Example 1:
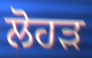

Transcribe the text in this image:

ਲੋਹੜ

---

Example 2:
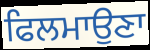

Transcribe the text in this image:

ਫਿਲਮਾਉਣਾ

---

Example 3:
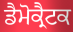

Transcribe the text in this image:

ਡੈਮੋਕ੍ਰੈਟਕ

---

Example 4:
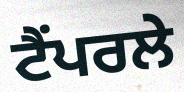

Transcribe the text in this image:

ਟੈਂਪਰਲੇ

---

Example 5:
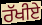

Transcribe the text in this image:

ਰੱਖੀਏ